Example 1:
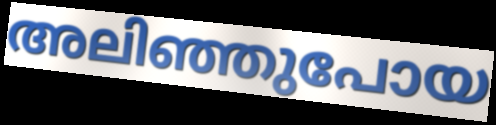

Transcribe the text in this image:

അലിഞ്ഞുപോയ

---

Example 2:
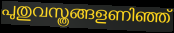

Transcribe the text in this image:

പുതുവസ്ത്രങ്ങളണിഞ്ഞ്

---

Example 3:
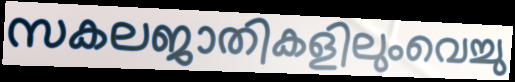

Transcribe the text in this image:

സകലജാതികളിലുംവെച്ചു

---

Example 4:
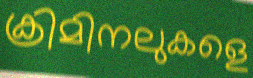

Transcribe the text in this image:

ക്രിമിനലുകളെ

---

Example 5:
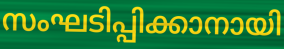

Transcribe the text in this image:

സംഘടിപ്പിക്കാനായി